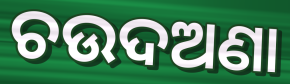
ଚଉଦଅଣା